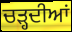
ਚੜ੍ਹਦੀਆਂ